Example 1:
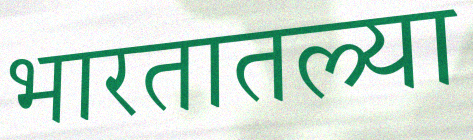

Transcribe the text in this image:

भारतातल्या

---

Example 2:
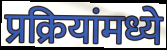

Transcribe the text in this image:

प्रक्रियांमध्ये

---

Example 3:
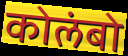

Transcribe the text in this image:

कोलंबो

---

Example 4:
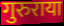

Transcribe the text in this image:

गुरुराया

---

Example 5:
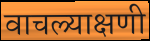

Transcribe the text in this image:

वाचल्याक्षणी